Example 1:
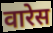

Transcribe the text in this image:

वारेस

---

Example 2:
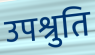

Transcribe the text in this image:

उपश्रुति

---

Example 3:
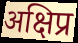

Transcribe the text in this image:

अक्षिप्र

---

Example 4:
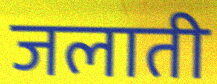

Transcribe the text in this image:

जलाती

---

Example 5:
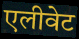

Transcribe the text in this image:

एलीवेट